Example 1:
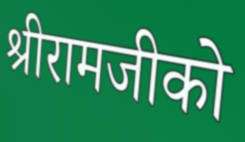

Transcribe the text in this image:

श्रीरामजीको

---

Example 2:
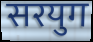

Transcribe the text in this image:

सरयुग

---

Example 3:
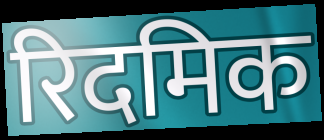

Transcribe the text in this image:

रिदमिक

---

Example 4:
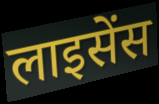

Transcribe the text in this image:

लाइसेंस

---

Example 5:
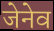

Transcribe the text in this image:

जेनेव